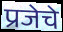
प्रजेचे